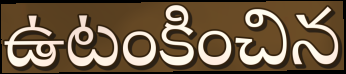
ఉటంకించిన